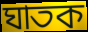
ঘাতক